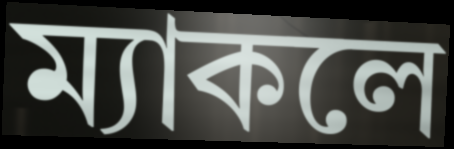
ম্যাকলে